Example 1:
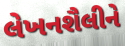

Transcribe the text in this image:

લેખનશૈલીને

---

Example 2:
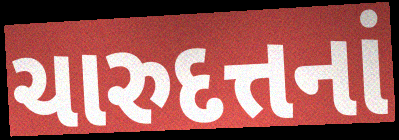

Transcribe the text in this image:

ચારુદત્તનાં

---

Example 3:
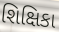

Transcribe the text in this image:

શિક્ષિકા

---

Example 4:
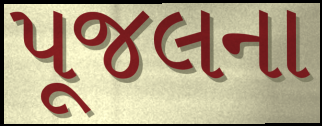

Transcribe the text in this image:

પૂજલના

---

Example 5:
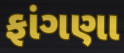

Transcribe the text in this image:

ફાંગણા